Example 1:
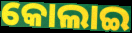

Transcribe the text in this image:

କୋଲାଇ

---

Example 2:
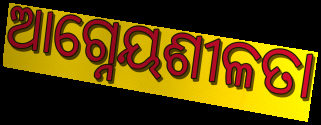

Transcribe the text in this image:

ଆଗ୍ନେୟଶୀଳତା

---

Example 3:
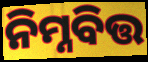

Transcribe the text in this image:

ନିମ୍ନବିତ୍ତ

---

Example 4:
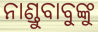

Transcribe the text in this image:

ନାଣ୍ଡୁବାବୁଙ୍କୁ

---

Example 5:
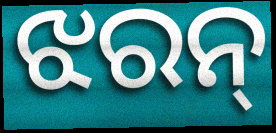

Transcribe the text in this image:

ଝରନ୍